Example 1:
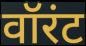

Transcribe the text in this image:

वॉरंट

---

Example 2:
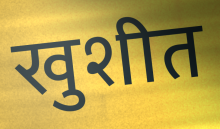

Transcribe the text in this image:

खुशीत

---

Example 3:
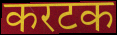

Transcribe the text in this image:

करटक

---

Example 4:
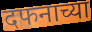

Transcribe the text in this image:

दफनाच्या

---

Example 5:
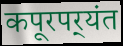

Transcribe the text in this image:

कपूरपर्यंत